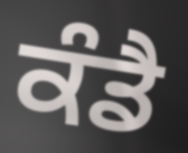
ਕੰਡੈ